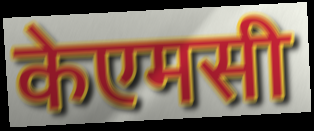
केएमसी